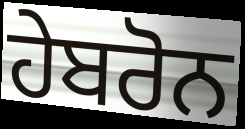
ਹੇਬਰੋਨ